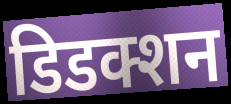
डिडक्शन